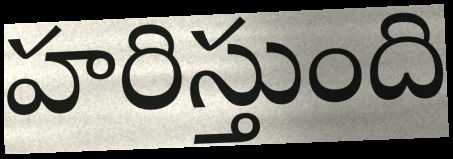
హరిస్తుంది